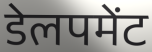
डेलपमेंट